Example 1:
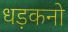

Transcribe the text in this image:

धड़कनो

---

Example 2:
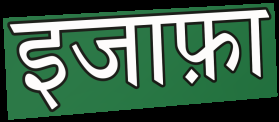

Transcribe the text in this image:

इजाफ़ा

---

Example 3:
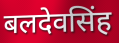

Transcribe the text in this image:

बलदेवसिंह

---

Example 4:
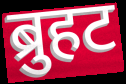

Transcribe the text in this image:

ब्रुहट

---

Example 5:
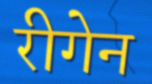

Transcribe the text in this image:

रीगेन